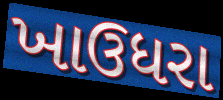
ખાઉધરા